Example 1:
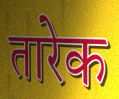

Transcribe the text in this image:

तारेक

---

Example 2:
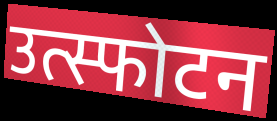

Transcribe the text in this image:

उत्स्फोटन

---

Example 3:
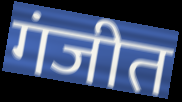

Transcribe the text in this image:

गंजीत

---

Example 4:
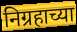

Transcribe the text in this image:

निग्रहाच्या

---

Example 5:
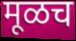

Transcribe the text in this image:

मूळच